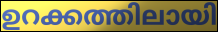
ഉറക്കത്തിലായി